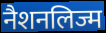
नैशनलिज्म